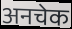
अनचेक